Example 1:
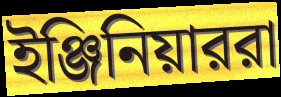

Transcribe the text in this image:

ইঞ্জিনিয়াররা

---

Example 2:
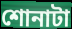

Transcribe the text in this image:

শোনাটা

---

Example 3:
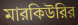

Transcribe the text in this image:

মারকিউরির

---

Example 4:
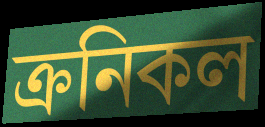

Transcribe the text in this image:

ক্রনিকল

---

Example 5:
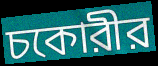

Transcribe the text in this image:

চকোরীর